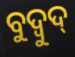
ବୁଦ୍ବୁଦ୍